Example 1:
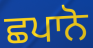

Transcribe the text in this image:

ਛਪਾਨੋ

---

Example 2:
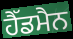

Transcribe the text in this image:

ਹੈੱਡਮੈਨ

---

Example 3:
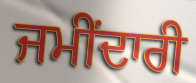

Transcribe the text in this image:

ਜਮੀਂਦਾਰੀ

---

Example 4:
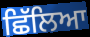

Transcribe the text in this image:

ਛਿੱਲਿਆ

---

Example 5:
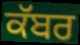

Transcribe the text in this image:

ਕੱਬਰ